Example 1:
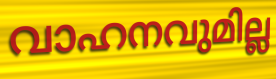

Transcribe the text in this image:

വാഹനവുമില്ല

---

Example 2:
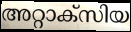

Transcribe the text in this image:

അറ്റാക്സിയ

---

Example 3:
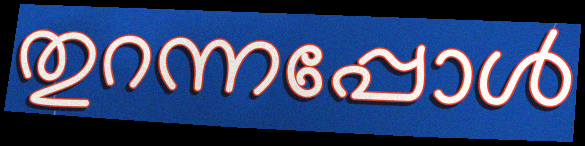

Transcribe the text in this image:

തുറന്നപ്പോൾ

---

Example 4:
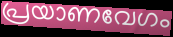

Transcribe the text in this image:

പ്രയാണവേഗം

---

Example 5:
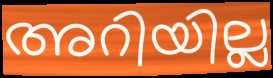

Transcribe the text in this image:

അറിയില്ല